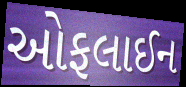
ઓફલાઈન